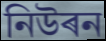
নিউৰন